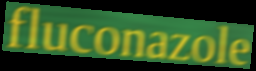
fluconazole